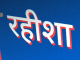
रहीशा